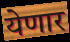
येणार